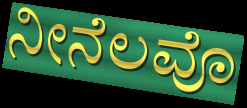
ನೀನೆಲವೊ